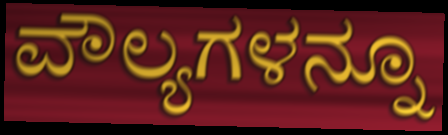
ವೌಲ್ಯಗಳನ್ನೂ